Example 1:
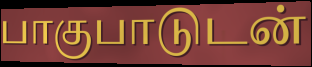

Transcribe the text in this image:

பாகுபாடுடன்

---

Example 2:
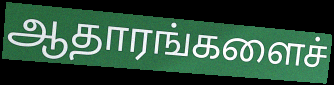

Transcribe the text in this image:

ஆதாரங்களைச்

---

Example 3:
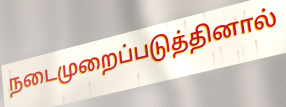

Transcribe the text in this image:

நடைமுறைப்படுத்தினால்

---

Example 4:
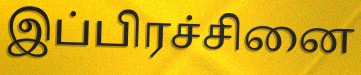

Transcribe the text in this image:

இப்பிரச்சினை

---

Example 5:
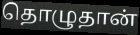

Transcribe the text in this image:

தொழுதான்